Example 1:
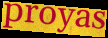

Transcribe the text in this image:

proyas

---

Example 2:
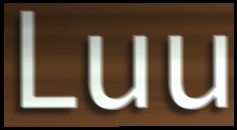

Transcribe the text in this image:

Luu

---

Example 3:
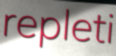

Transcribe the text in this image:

repleti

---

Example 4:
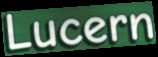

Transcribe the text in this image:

Lucern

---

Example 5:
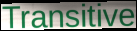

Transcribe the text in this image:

Transitive